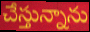
చేస్తున్నాను